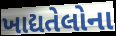
ખાદ્યતેલોના